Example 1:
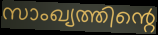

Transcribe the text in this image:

സാംഖ്യത്തിന്റെ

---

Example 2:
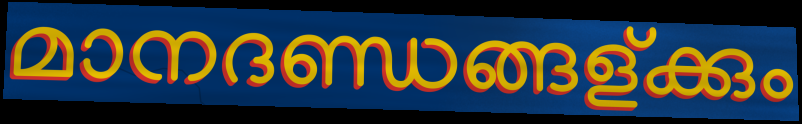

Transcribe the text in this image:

മാനദണ്ഡങ്ങള്ക്കും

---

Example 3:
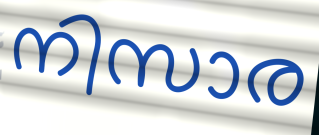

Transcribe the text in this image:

നിസാര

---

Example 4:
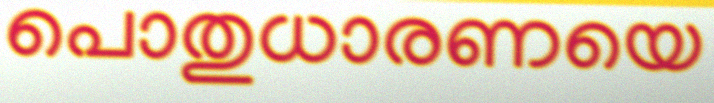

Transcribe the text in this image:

പൊതുധാരണയെ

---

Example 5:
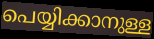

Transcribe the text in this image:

പെയ്യിക്കാനുള്ള